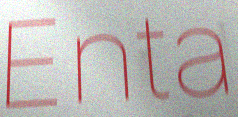
Enta